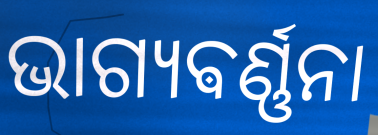
ଭାଗ୍ୟଵର୍ଣ୍ଣନା